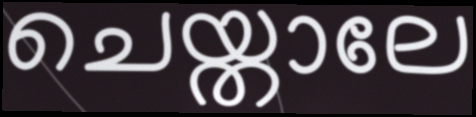
ചെയ്താലേ